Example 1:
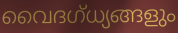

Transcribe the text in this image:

വൈദഗ്ധ്യങ്ങളും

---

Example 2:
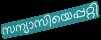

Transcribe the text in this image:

സന്യാസിയെപ്പറ്റി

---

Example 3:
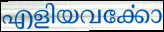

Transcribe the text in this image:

എളിയവൎക്കോ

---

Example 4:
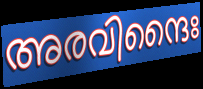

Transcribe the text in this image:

അരവിന്ദൈഃ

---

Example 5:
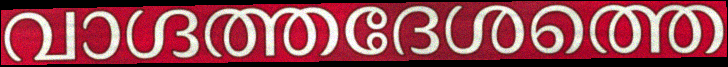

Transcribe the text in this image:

വാഗ്ദത്തദേശത്തെ